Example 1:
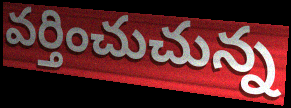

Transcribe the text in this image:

వర్తించుచున్న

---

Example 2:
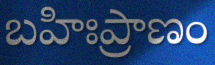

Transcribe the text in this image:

బహిఃప్రాణం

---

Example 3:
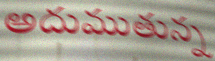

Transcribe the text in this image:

అదుముతున్న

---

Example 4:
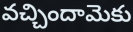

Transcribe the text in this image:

వచ్చిందామెకు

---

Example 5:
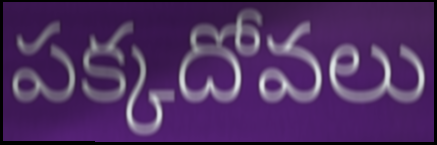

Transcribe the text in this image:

పక్కదోవలు